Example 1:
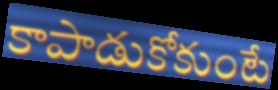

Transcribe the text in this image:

కాపాడుకోకుంటే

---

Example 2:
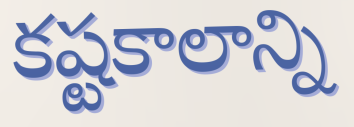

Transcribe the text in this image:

కష్టకాలాన్ని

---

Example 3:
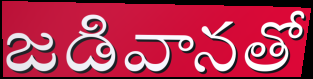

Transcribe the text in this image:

జడివానతో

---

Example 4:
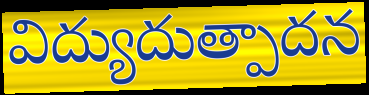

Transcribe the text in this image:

విద్యుదుత్పాదన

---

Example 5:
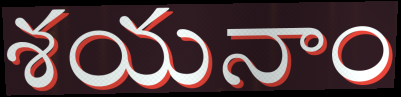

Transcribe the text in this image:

శయనాం